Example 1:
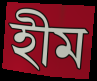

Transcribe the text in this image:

হীম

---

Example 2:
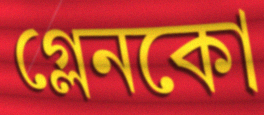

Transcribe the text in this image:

গ্লেনকো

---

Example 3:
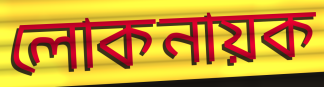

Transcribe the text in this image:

লোকনায়ক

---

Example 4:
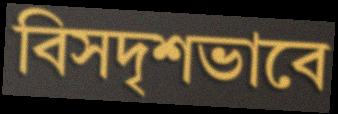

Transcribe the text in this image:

বিসদৃশভাবে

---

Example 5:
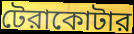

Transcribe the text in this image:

টেরাকোটার